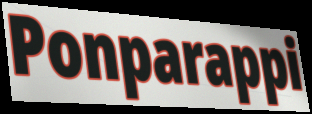
Ponparappi